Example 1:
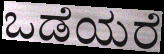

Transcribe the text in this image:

ಒಡೆಯರೆ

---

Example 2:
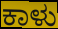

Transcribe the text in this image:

ಕಾಳು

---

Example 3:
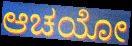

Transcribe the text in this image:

ಆಚಯೋ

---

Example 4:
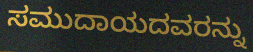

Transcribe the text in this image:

ಸಮುದಾಯದವರನ್ನು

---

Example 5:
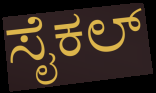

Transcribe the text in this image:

ಸೈಕಲ್